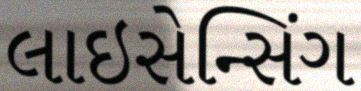
લાઇસેન્સિંગ